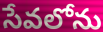
సేవలోను